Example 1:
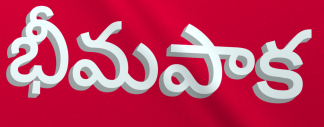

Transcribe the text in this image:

భీమపాక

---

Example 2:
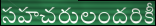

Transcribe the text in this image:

సహచరులందరికీ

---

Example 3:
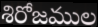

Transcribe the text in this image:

శిరోజముల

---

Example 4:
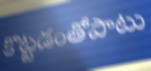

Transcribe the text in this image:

కొట్టడంతోపాటు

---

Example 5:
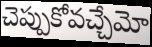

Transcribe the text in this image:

చెప్పుకోవచ్చేమో